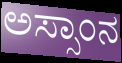
ಅಸ್ಸಾಂನ